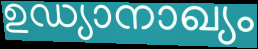
ഉഡ്യാനാഖ്യം